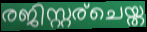
രജിസ്റ്റര്ചെയ്ത